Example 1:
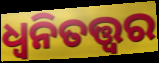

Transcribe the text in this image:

ଧ୍ଵନିତତ୍ତ୍ଵର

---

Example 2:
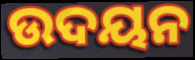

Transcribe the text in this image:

ଉଦୟନ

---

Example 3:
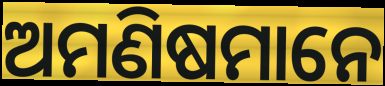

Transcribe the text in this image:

ଅମଣିଷମାନେ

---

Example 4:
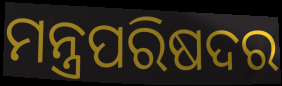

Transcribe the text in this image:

ମନ୍ତ୍ରପରିଷଦର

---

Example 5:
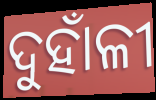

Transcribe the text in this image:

ଦୁହାଁଳୀ